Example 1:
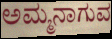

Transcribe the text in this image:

ಅಮ್ಮನಾಗುವ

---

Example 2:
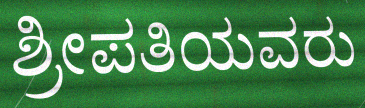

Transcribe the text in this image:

ಶ್ರೀಪತಿಯವರು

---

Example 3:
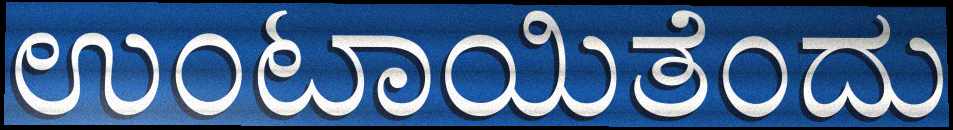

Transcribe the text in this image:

ಉಂಟಾಯಿತೆಂದು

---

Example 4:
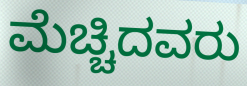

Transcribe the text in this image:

ಮೆಚ್ಚಿದವರು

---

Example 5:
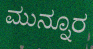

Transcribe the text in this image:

ಮುನ್ನೂರ